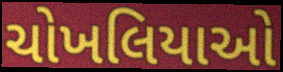
ચોખલિયાઓ